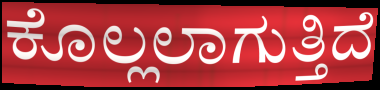
ಕೊಲ್ಲಲಾಗುತ್ತಿದೆ